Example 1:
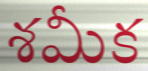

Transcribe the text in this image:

శమీక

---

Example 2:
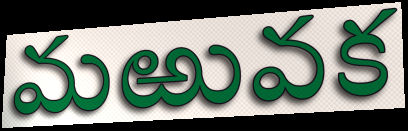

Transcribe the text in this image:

మఱువక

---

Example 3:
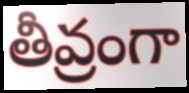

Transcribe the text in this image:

తీవ్రంగా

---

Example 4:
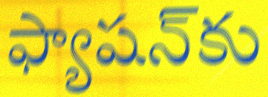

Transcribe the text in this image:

ఫ్యాషన్‌కు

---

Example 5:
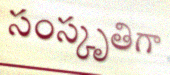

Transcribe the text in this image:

సంస్కృతిగా